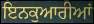
ਇਨਕੁਆਰੀਆਂ